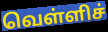
வெள்ளிச்